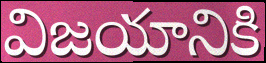
విజయానికి